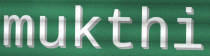
mukthi